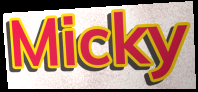
Micky